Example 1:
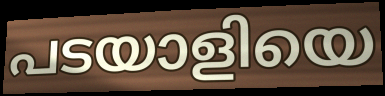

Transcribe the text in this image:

പടയാളിയെ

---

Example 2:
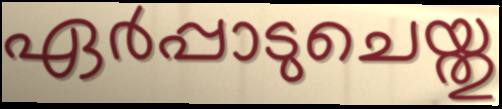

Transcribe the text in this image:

ഏർപ്പാടുചെയ്തു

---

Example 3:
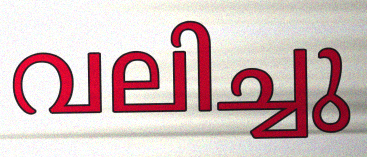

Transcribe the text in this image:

വലിച്ചു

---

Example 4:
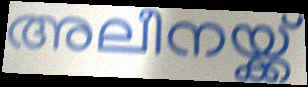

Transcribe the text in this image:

അലീനയ്ക്ക്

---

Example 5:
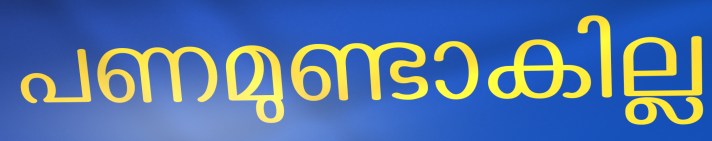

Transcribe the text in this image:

പണമുണ്ടാകില്ല